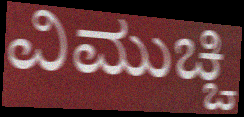
ವಿಮುಚ್ಚಿ